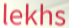
lekhs